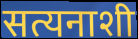
सत्यनाशी